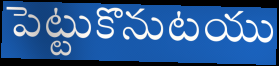
పెట్టుకొనుటయు